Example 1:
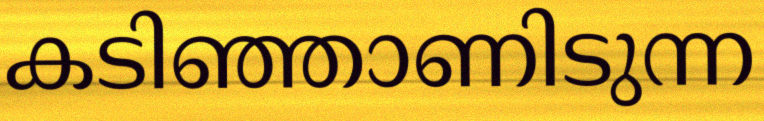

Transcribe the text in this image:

കടിഞ്ഞാണിടുന്ന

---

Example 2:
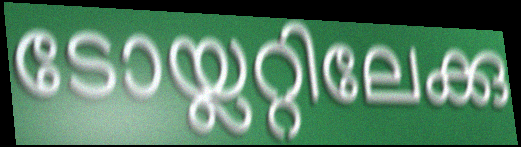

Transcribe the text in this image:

ടോയ്ലറ്റിലേക്കു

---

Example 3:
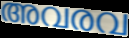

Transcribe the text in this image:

അവരവ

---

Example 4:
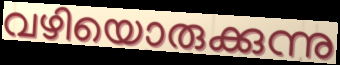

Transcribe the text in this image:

വഴിയൊരുക്കുന്നു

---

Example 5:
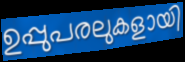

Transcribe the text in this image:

ഉപ്പുപരലുകളായി